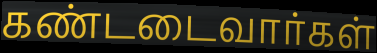
கண்டடைவார்கள்